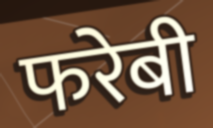
फरेबी